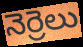
నెర్రెలు